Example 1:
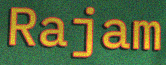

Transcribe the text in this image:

Rajam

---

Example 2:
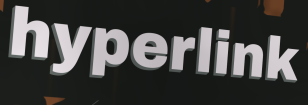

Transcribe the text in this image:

hyperlink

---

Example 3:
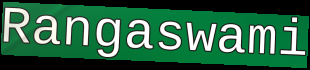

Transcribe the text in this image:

Rangaswami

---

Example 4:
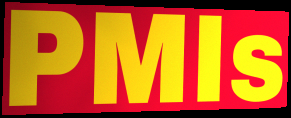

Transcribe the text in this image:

PMIs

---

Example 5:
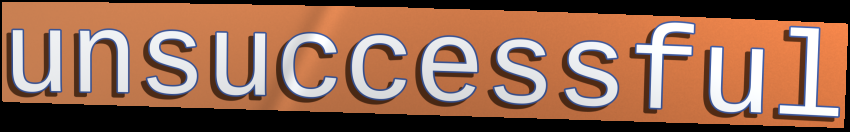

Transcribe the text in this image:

unsuccessful